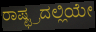
ರಾಷ್ಟ್ರದಲ್ಲಿಯೇ